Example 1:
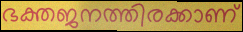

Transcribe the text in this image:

ഭക്തജനത്തിരക്കാണ്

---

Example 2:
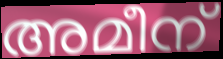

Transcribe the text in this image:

അമീന്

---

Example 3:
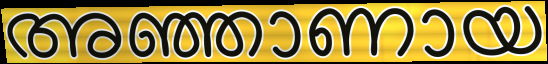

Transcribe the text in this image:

അഞ്ഞാണായ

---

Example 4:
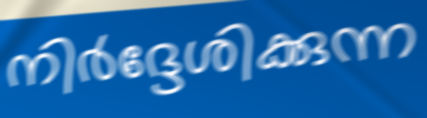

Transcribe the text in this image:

നിർദ്ദേശിക്കുന്ന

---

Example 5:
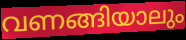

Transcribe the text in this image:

വണങ്ങിയാലും